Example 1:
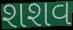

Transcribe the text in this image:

શશવ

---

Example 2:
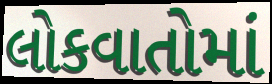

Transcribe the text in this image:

લોકવાતોમાં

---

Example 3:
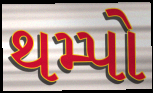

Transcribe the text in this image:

થમ્પો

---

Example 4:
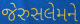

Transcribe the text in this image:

જેરુસલેમને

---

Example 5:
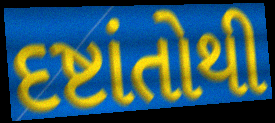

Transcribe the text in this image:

દષ્ટાંતોથી